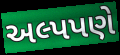
અલ્પપણે